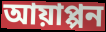
আয়াপ্পন